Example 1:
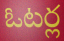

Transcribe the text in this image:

ఓటర్ల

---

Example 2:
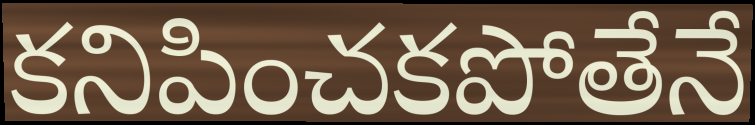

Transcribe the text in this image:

కనిపించకపోతేనే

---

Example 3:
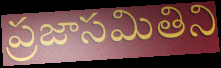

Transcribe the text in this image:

ప్రజాసమితిని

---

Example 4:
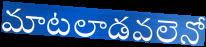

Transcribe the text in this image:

మాటలాడవలెనో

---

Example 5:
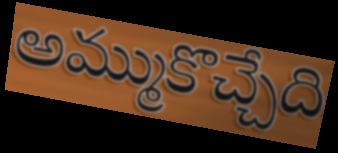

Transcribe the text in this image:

అమ్ముకొచ్చేది